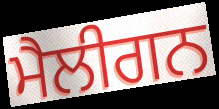
ਮੈਲੀਗਨ